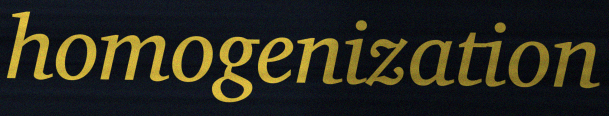
homogenization